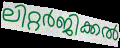
ലിറ്റർജിക്കൽ